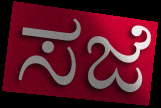
ಸಜೆ